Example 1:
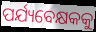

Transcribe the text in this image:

ପର୍ଯ୍ୟବେକ୍ଷକକୁ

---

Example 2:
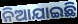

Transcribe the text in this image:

ନିଆଯାଇଛି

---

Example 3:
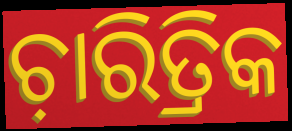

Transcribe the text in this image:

ଚ଼ାରିତ୍ରିକ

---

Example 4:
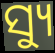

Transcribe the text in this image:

ସ୍ୟୁ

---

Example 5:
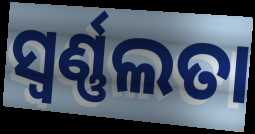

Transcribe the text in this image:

ସ୍ଵର୍ଣ୍ଣଲତା